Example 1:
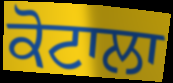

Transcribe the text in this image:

ਕੋਟਾਲਾ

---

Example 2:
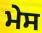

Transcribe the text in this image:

ਮੇਸ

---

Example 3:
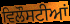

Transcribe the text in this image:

ਵਿਲੌਸਟੀਆਂ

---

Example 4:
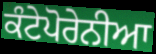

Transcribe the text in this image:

ਕੰਟੇਪੋਰੇਨੀਆ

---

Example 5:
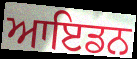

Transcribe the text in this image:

ਆਇਡਨ